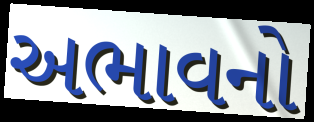
અભાવનો